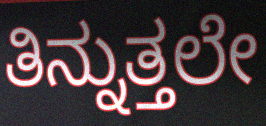
ತಿನ್ನುತ್ತಲೇ